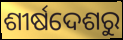
ଶୀର୍ଷଦେଶରୁ